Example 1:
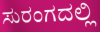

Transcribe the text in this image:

ಸುರಂಗದಲ್ಲಿ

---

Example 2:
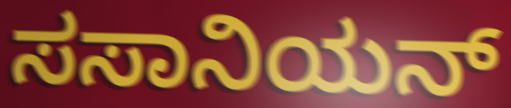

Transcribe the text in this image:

ಸಸಾನಿಯನ್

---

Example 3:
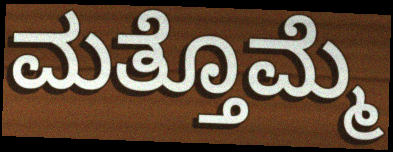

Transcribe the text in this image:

ಮತ್ತೊಮ್ಮೆ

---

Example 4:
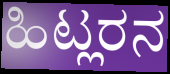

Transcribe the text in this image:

ಹಿಟ್ಲರನ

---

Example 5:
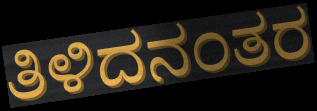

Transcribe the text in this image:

ತಿಳಿದನಂತರ